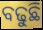
ବଢୁଛି